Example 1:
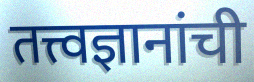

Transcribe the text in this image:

तत्त्वज्ञानांची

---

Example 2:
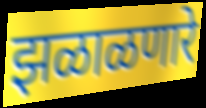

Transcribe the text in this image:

झळाळणारे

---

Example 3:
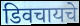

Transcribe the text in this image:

डिवचायचे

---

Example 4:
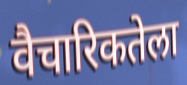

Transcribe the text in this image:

वैचारिकतेला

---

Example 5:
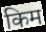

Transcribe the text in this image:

किम